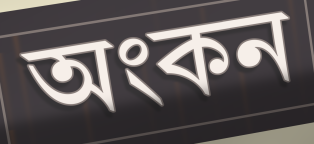
অংকন